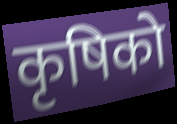
कृषिको